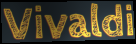
Vivaldi